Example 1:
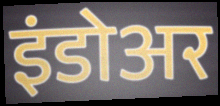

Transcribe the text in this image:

इंडोअर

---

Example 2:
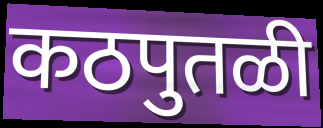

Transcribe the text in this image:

कठपुतळी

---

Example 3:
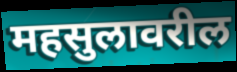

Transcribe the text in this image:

महसुलावरील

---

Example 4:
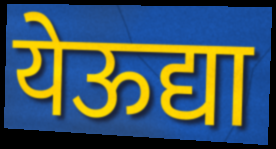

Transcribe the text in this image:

येऊद्या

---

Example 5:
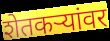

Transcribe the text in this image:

शेतकऱ्यांवर